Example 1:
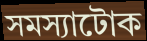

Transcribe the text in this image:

সমস্যাটোক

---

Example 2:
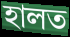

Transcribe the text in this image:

হালত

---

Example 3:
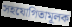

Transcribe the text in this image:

সহযোগিতামূলক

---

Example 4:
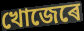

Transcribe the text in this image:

খোজেৰে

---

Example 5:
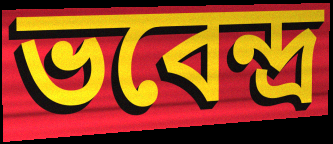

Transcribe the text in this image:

ভবেন্দ্ৰ